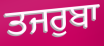
ਤਜਰੁਬਾ